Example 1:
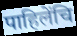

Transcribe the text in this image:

पाहिलेंचि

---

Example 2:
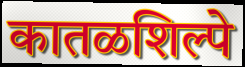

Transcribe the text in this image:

कातळशिल्पे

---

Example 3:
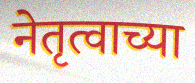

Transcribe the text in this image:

नेतृत्वाच्या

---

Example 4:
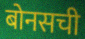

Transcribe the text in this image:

बोनसची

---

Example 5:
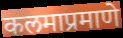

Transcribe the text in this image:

कलमाप्रमाणे